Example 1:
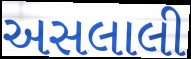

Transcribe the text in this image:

અસલાલી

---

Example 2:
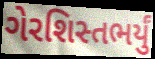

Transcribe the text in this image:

ગેરશિસ્તભર્યું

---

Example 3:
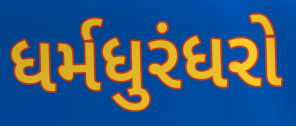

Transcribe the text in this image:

ધર્મધુરંધરો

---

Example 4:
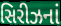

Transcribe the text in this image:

સિરીઝનાં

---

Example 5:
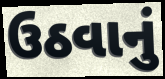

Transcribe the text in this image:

ઉઠવાનું